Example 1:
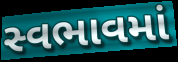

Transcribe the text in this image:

સ્વભાવમાં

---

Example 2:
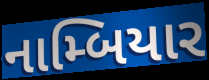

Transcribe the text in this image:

નામ્બિયાર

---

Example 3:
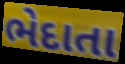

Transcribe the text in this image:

ભેદાતા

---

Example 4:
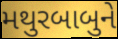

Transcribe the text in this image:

મથુરબાબુને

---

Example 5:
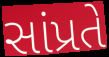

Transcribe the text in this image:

સાંપ્રતે